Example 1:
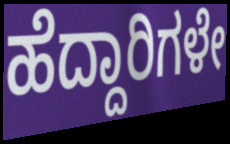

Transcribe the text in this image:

ಹೆದ್ದಾರಿಗಳೇ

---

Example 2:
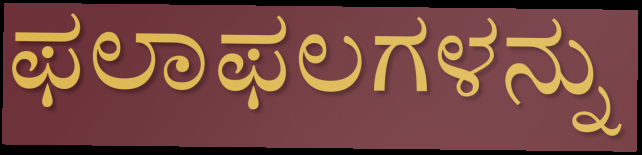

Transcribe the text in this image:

ಫಲಾಫಲಗಳನ್ನು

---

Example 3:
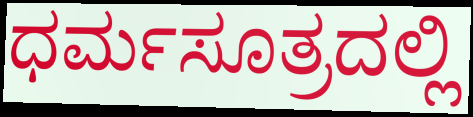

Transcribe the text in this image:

ಧರ್ಮಸೂತ್ರದಲ್ಲಿ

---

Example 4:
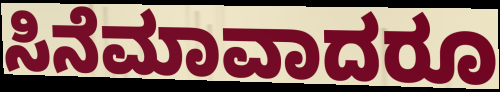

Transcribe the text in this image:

ಸಿನೆಮಾವಾದರೂ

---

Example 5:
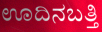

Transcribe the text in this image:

ಊದಿನಬತ್ತಿ